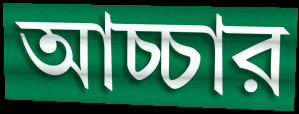
আচ্চার